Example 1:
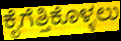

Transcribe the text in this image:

ಕೈಗೆತ್ತಿಕೊಳ್ಳಲು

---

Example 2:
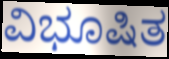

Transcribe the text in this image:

ವಿಭೂಷಿತ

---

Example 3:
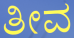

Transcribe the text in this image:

ತೀವ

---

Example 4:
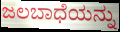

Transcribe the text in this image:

ಜಲಬಾಧೆಯನ್ನು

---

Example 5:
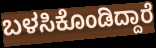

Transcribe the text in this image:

ಬಳಸಿಕೊಂಡಿದ್ದಾರೆ